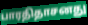
பாரதிதாசனது